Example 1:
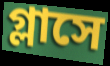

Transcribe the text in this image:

গ্লাসে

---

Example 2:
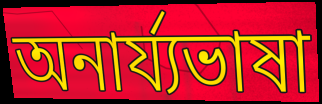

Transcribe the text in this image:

অনার্য্যভাষা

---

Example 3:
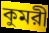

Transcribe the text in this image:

কুমরী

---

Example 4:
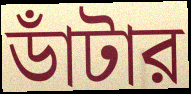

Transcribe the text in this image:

ডাঁটার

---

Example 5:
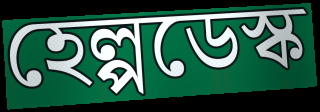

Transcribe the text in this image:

হেল্পডেস্ক